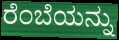
ರೆಂಬೆಯನ್ನು